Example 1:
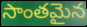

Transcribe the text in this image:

సాంతమైన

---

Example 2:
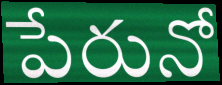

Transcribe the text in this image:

పేరునో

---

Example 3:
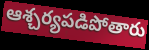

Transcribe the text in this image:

ఆశ్చర్యపడిపోతారు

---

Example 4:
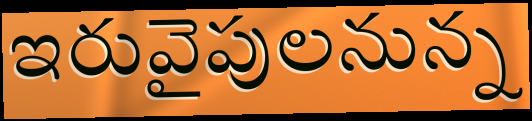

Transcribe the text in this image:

ఇరువైపులనున్న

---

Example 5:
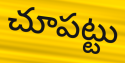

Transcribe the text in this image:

చూపట్టు